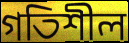
গতিশীল